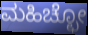
ಮಹಿಚ್ಛೋ